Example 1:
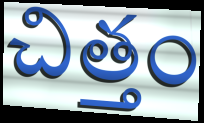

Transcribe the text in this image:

చిత్తం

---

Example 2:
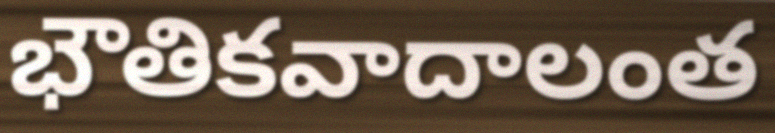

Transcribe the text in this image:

భౌతికవాదాలంత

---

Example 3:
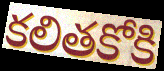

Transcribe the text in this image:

కలితకోకి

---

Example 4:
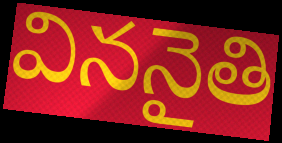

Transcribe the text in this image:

విననైతి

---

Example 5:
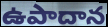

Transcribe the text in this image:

ఉపాదాన